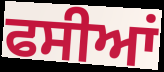
ਫਸੀਆਂ